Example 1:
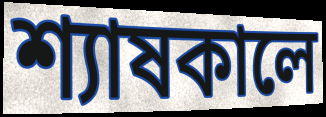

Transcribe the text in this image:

শ্যাষকালে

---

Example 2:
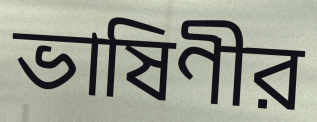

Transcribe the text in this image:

ভাষিণীর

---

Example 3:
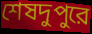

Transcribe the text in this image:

শেষদুপুরে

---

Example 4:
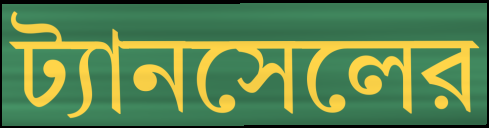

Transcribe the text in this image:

ট্যানসেলের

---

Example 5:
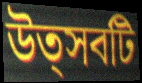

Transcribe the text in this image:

উত্সবটি